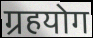
ग्रहयोग